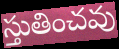
స్తుతించవు